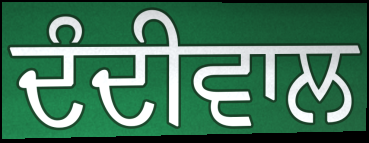
ਦੰਦੀਵਾਲ